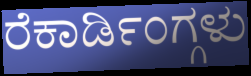
ರೆಕಾರ್ಡಿಂಗ್ಗಳು